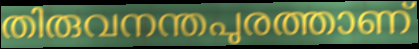
തിരുവനന്തപുരത്താണ്